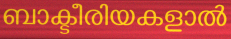
ബാക്ടീരിയകളാൽ